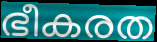
ഭീകരത